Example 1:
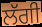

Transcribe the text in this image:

ਲੱਗੀ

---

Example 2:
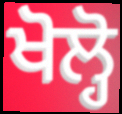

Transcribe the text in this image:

ਖੋਲ੍ਹੋ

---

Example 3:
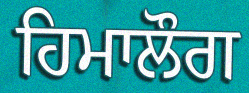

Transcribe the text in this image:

ਹਿਮਾਲੌਗ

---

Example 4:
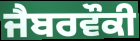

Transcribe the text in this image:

ਜੈਬਰਵੌਕੀ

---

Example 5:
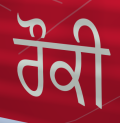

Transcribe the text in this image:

ਰੌਕੀ